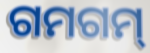
ଗମଗମ୍